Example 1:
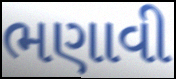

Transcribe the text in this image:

ભણાવી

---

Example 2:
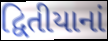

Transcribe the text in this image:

દ્વિતીયાનાં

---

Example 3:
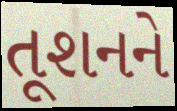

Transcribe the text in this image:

તૂશનને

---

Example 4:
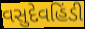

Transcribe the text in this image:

વસુદેવહિંડી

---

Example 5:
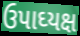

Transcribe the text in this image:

ઉપાઘ્યક્ષ